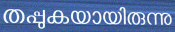
തപ്പുകയായിരുന്നു